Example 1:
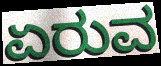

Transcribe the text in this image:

ಏರುವ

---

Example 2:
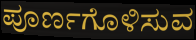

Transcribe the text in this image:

ಪೂರ್ಣಗೊಳಿಸುವ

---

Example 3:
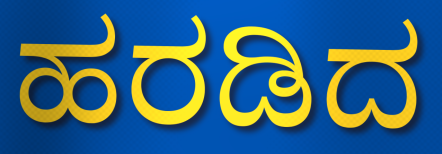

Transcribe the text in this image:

ಹರಡಿದ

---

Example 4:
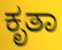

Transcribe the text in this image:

ಕೃತಾ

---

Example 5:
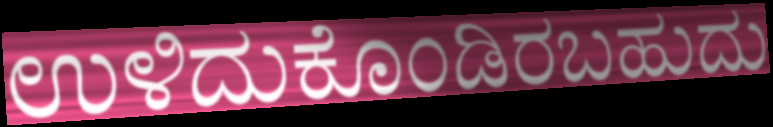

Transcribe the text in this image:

ಉಳಿದುಕೊಂಡಿರಬಹುದು